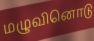
மழுவினொடு